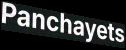
Panchayets